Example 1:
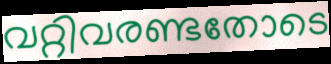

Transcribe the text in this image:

വറ്റിവരണ്ടതോടെ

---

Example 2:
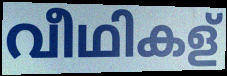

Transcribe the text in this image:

വീഥികള്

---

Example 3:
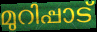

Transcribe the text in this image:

മുറിപ്പാട്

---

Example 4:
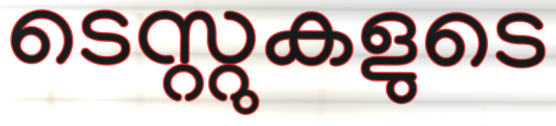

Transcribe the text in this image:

ടെസ്റ്റുകളുടെ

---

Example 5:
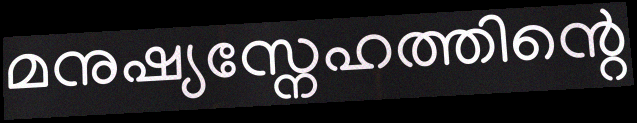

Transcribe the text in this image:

മനുഷ്യസ്നേഹത്തിന്റെ